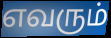
எவரும்